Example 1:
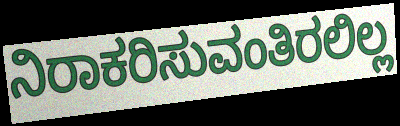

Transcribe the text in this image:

ನಿರಾಕರಿಸುವಂತಿರಲಿಲ್ಲ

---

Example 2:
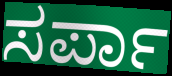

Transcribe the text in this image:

ಸರ್ಪಾ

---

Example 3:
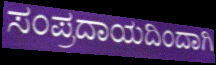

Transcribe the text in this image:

ಸಂಪ್ರದಾಯದಿಂದಾಗಿ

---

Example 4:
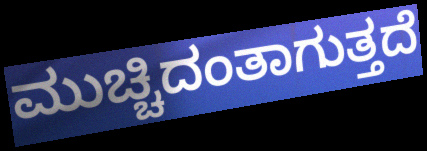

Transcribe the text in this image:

ಮುಚ್ಚಿದಂತಾಗುತ್ತದೆ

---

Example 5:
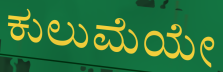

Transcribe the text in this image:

ಕುಲುಮೆಯೇ